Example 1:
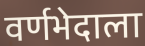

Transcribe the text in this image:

वर्णभेदाला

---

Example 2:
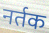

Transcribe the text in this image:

नर्तक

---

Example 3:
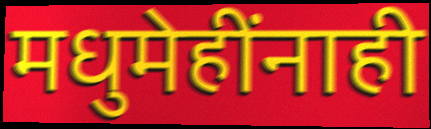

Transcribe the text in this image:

मधुमेहींनाही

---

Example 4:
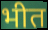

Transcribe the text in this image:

भीत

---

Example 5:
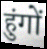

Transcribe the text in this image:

हुंगों